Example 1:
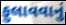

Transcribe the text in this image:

ફુલાવવાનું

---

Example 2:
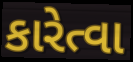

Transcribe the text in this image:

કારેત્વા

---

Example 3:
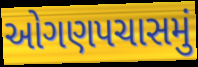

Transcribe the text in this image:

ઓગણપચાસમું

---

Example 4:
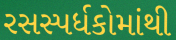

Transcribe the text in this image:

રસસ્પર્ધકોમાંથી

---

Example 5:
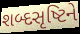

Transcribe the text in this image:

શબ્દસૃષ્ટિને